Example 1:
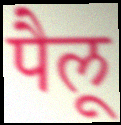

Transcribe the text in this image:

पैलू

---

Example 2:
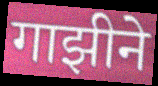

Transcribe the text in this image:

गाझीने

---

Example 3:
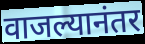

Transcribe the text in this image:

वाजल्यानंतर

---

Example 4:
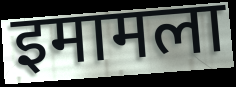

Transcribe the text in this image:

इमामला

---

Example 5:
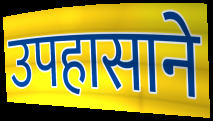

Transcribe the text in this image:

उपहासाने